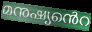
മനുഷ്യൻെറ